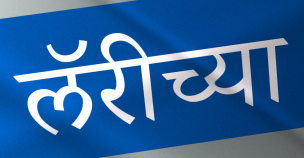
लॅरीच्या